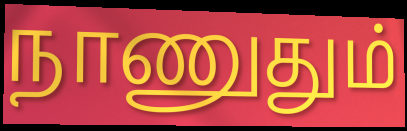
நாணுதும்